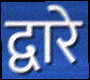
द्वारे